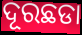
ଦୂରଛଡା